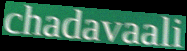
chadavaali